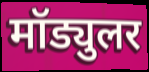
मॉड्युलर